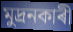
মুদ্ৰনকাৰী